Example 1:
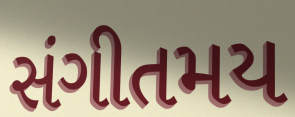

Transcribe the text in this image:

સંગીતમય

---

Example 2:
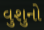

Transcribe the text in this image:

વુશુનો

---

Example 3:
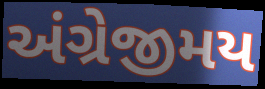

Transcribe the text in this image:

અંગ્રેજીમય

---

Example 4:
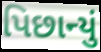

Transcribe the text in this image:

પિછાન્યું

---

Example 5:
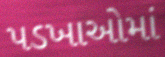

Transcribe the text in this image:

પડખાઓમાં